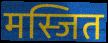
मस्जित